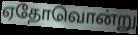
ஏதோவொன்று